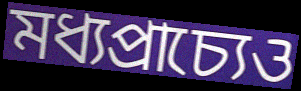
মধ্যপ্রাচ্যেও